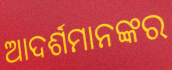
ଆଦର୍ଶମାନଙ୍କର